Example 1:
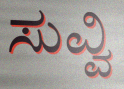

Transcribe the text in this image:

ಸುವ್ವಿ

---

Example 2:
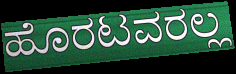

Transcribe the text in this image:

ಹೊರಟವರಲ್ಲ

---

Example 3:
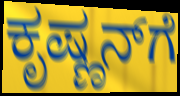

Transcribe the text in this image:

ಕೃಷ್ಣನ್‌ಗೆ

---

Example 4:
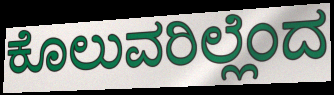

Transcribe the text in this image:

ಕೊಲುವರಿಲ್ಲೆಂದ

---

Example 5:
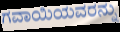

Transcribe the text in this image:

ಗವಾಯಿಯವರನ್ನು